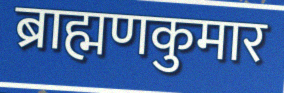
ब्राह्मणकुमार